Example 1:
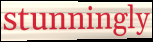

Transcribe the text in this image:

stunningly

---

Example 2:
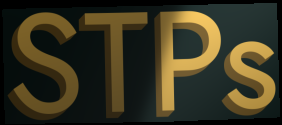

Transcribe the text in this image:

STPs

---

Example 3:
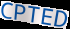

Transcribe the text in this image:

CPTED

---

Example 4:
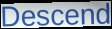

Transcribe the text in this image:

Descend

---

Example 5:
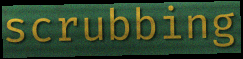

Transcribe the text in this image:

scrubbing